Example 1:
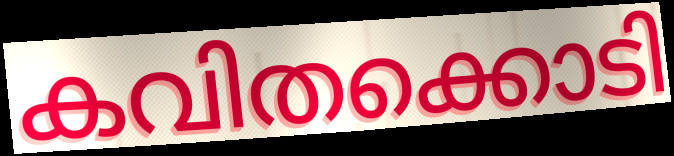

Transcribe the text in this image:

കവിതക്കൊടി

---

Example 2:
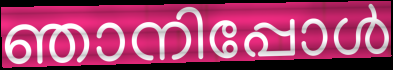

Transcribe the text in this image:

ഞാനിപ്പോൾ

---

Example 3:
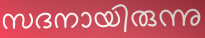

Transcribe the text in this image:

സദനായിരുന്നു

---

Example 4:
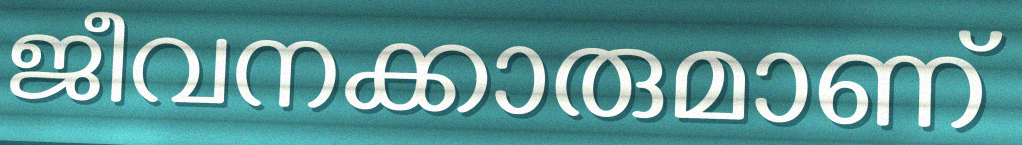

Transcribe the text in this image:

ജീവനക്കാരുമാണ്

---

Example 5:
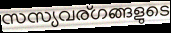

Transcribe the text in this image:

സസ്യവര്ഗങ്ങളുടെ